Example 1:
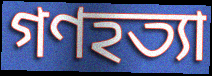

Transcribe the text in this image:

গণহত্যা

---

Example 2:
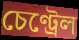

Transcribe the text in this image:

চেণ্ট্ৰেল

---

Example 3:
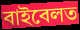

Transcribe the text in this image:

বাইবেলত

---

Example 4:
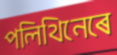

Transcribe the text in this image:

পলিথিনেৰে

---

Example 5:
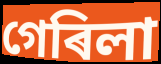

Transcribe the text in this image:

গেৰিলা